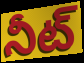
నీట్